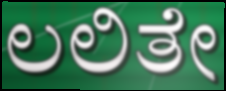
ಲಲಿತೇ